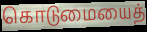
கொடுமையைத்